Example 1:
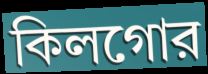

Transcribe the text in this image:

কিলগোর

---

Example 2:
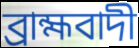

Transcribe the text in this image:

ব্রাহ্মবাদী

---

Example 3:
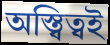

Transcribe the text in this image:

অস্ত্বিত্বই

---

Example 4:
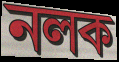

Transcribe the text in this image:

নলক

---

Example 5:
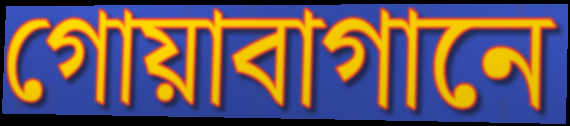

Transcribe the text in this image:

গোয়াবাগানে